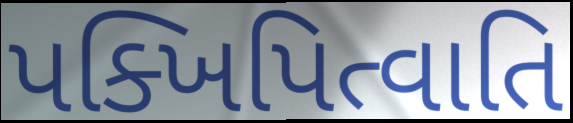
પક્ખિપિત્વાતિ